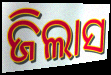
ଜିଲାସ